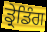
ਡ੍ਰੇਡਿੰਗ